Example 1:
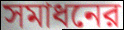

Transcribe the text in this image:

সমাধনের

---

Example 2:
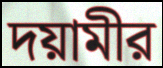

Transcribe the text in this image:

দয়ামীর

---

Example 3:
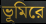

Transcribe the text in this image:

ভূমিরে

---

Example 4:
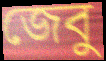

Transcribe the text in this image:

জেবু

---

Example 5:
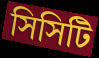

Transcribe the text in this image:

সিসিটি